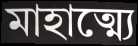
মাহাত্ম্যে